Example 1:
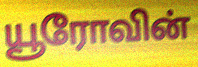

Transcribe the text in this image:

யூரோவின்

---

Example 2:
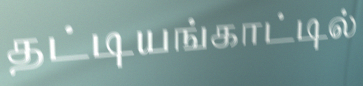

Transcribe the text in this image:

தட்டியங்காட்டில்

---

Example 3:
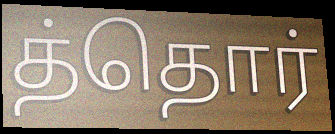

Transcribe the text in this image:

த்தொர்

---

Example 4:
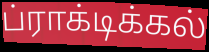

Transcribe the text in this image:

ப்ராக்டிக்கல்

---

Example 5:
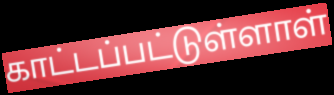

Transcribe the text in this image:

காட்டப்பட்டுள்ளாள்